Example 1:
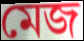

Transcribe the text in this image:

মেজ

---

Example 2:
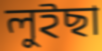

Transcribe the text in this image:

লুইছা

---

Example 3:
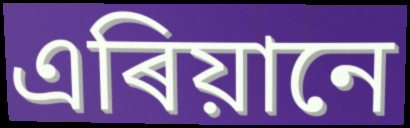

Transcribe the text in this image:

এৰিয়ানে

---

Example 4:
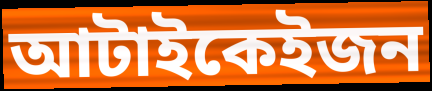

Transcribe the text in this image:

আটাইকেইজন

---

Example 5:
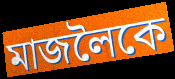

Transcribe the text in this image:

মাজলৈকে